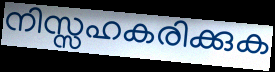
നിസ്സഹകരിക്കുക